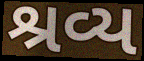
શ્રવ્ય